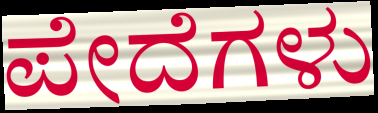
ಪೇದೆಗಳು